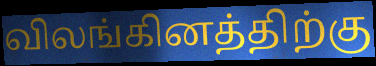
விலங்கினத்திற்கு